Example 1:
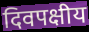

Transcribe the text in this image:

दिवपक्षीय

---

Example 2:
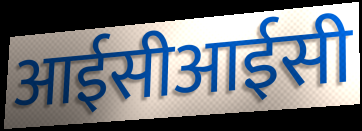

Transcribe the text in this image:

आईसीआईसी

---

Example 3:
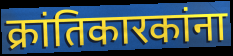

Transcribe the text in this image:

क्रांतिकारकांना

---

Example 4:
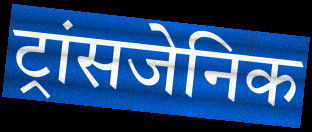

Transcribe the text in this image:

ट्रांसजेनिक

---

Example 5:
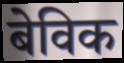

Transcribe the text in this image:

बेविक